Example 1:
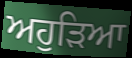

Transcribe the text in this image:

ਅਹੁੜਿਆ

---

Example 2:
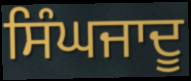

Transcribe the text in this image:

ਸਿੰਘਜਾਦੂ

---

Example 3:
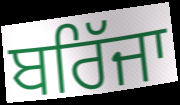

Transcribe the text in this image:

ਬਰਿੱਜਾ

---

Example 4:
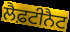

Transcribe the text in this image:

ਲੈਫ਼ਟੀਨੈਟ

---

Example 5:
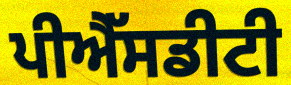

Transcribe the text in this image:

ਪੀਐੱਸਡੀਟੀ